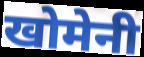
खोमेनी